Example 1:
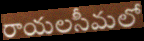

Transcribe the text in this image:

రాయలసీమలో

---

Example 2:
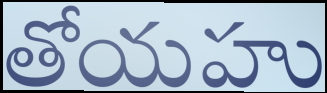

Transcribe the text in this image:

తోయహు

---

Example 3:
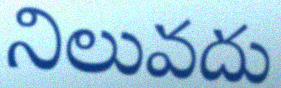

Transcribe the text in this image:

నిలువదు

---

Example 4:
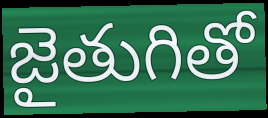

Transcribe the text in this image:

జైతుగితో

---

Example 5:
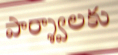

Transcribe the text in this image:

పార్శ్వాలకు